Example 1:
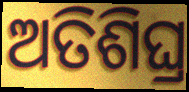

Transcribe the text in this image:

ଅତିଶିଘ୍ର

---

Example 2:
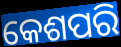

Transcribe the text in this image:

କେଶପରି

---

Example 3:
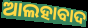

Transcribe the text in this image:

ଆଲହାବାଦ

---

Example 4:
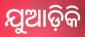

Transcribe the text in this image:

ଯୁଆଡ଼ିକି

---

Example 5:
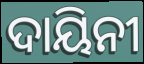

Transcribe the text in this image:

ଦାୟିନୀ